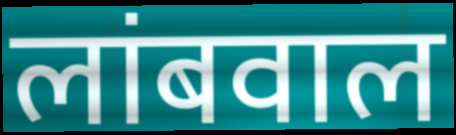
लांबवाल